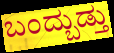
ಬಂದ್ಬುಡ್ತು